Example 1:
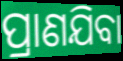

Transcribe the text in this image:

ପ୍ରାଣଯିବା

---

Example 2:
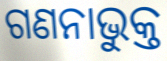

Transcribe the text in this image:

ଗଣନାଭୁକ୍ତ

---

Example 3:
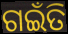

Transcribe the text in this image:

ଗଇଁତି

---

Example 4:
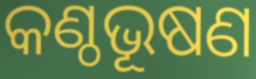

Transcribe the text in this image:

କଣ୍ଠଭୂଷଣ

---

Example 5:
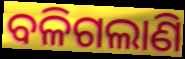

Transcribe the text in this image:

ବଳିଗଲାଣି